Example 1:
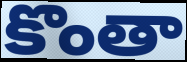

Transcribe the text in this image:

కొంతా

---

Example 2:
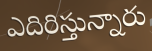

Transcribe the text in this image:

ఎదిరిస్తున్నారు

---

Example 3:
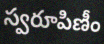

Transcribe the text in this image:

స్వరూపిణీం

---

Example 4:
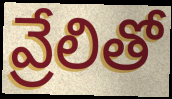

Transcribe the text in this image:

వ్రేలితో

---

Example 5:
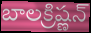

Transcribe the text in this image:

బాలక్రిష్ణన్